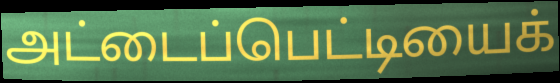
அட்டைப்பெட்டியைக்